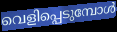
വെളിപ്പെടുമ്പോൾ